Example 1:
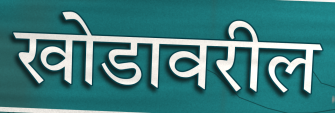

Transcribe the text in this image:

खोडावरील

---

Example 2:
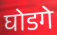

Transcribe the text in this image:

घोडगे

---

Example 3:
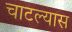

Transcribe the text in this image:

चाटल्यास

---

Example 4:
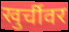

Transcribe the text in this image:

खुर्चीवर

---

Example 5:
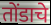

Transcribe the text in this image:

तोंडाचे